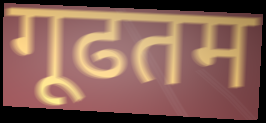
गूढतम